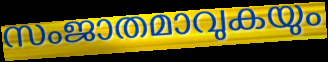
സംജാതമാവുകയും